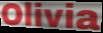
Olivia